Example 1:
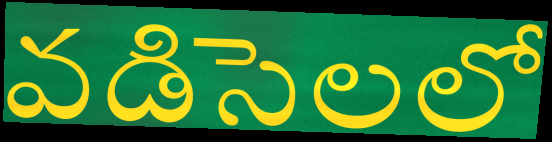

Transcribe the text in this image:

వడిసెలలో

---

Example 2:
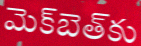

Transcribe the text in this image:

మెక్‌బెత్‌కు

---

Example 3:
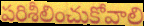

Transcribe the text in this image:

పరిశీలించుకోవాలి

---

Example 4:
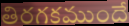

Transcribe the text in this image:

తిరగకముందే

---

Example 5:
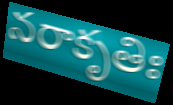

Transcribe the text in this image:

నరాకృతిః